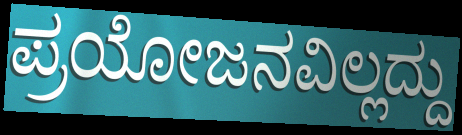
ಪ್ರಯೋಜನವಿಲ್ಲದ್ದು